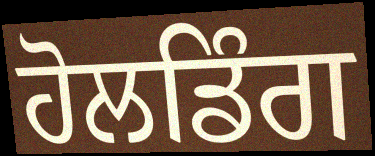
ਹੋਲਡਿੰਗ